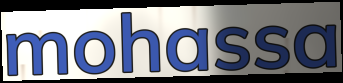
mohassa